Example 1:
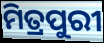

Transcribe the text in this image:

ମିତ୍ରପୁରୀ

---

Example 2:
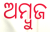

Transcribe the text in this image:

ଅମ୍ୱୁଜ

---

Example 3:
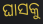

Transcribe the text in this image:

ଘାସକୁ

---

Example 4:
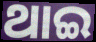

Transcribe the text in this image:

ଥାଇ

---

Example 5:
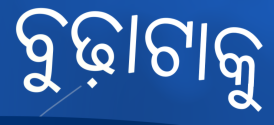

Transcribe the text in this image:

ବୁଢ଼ାଟାକୁ